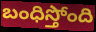
బంధిస్తోంది